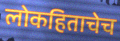
लोकहिताचेच